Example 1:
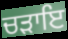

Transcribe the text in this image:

ਚੜਾਇ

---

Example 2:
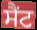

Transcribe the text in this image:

ਸੈਂਟ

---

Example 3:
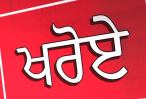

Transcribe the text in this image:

ਖਰੋਏ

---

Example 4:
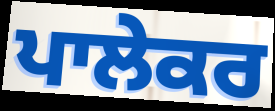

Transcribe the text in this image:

ਪਾਲੇਕਰ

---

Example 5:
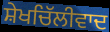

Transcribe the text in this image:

ਸ਼ੇਖਚਿੱਲੀਵਾਦ